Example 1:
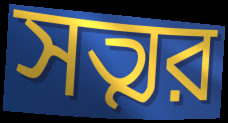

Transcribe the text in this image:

সত্মর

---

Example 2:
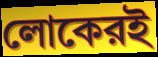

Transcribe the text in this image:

লোকেরই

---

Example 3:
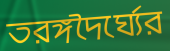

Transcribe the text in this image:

তরঙ্গদৈর্ঘ্যের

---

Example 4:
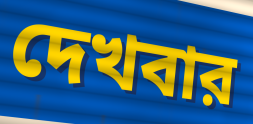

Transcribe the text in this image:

দেখবার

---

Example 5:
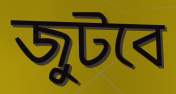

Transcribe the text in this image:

জুটবে